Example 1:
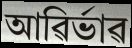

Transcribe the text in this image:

আৱিৰ্ভাৱ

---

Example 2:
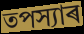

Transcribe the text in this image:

তপস্যাৰ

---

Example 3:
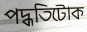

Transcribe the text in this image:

পদ্ধতিটোক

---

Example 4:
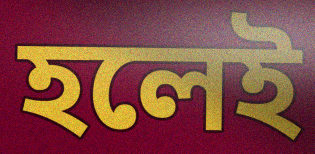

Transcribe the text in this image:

হলেই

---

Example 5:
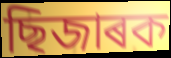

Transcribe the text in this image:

ছিজাৰক